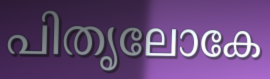
പിതൃലോകേ